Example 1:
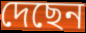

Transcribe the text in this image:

দেছেন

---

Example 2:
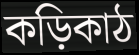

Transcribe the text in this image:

কড়িকাঠ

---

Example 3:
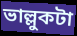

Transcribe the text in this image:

ভাল্লুকটা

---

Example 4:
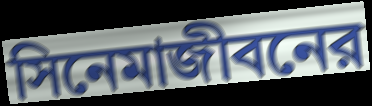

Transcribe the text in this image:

সিনেমাজীবনের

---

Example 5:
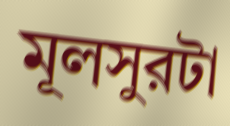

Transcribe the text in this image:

মূলসুরটা